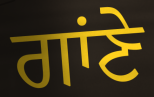
ਗਾਂਣੇ